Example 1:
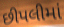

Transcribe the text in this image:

છીપલીમાં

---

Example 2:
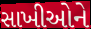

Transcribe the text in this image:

સાખીઓને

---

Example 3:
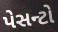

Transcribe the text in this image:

પેસન્ટો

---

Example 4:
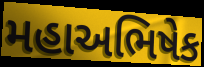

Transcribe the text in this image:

મહાઅભિષેક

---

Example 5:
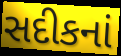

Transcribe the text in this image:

સદીકનાં